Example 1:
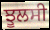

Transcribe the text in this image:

ਝੂਲਸੀ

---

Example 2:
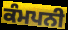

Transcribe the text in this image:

ਕੰਮਪਨੀ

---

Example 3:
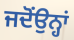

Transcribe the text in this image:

ਜਦੋਂਉਨ੍ਹਾਂ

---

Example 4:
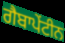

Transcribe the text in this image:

ਗੈਬਾਪੇਂਟੀਨ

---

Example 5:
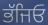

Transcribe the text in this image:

ਭੱਜਿਓ